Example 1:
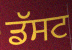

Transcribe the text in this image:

ਡੱਸਟ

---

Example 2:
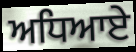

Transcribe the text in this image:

ਅਧਿਆਏ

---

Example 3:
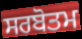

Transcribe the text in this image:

ਸਰਬੋਤਮ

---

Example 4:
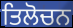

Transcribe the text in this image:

ਤਿਲੋਚਨ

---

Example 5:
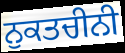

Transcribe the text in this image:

ਨੁਕਤਚੀਨੀ